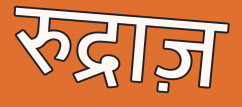
रुद्राज़